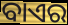
ବାଏର